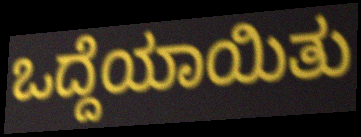
ಒದ್ದೆಯಾಯಿತು